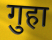
गुहा